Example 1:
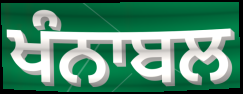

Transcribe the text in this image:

ਖੰਨਾਬਲ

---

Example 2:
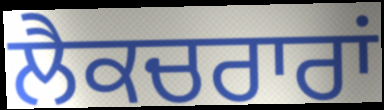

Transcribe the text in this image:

ਲੈਕਚਰਾਰਾਂ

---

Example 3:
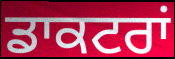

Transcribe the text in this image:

ਡਾਕਟਰਾਂ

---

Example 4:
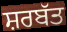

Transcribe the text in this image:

ਸ਼ਰਬੱਤ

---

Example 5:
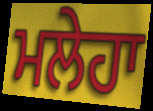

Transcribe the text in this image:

ਮਲੇਹਾ